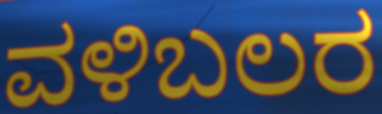
ವಳಿಬಲರ